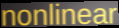
nonlinear